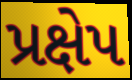
પ્રક્ષેપ